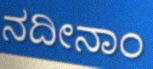
ನದೀನಾಂ